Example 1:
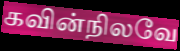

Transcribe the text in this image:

கவின்நிலவே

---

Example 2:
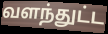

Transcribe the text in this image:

வளந்துட்ட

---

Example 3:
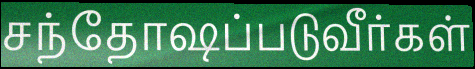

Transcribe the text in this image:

சந்தோஷப்படுவீர்கள்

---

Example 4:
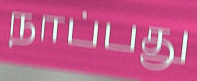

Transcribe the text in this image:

நாப்பது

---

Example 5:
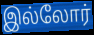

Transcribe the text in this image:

இல்லோர்